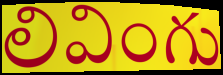
లివింగు